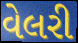
વેલરી